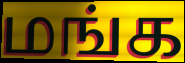
மங்க